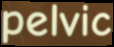
pelvic